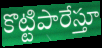
కొట్టిపారేస్తూ